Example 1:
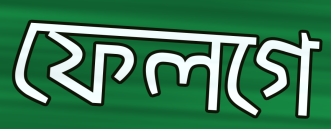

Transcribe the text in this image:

ফেলগে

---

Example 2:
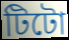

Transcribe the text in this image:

টিটো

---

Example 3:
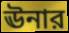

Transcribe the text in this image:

ঊনার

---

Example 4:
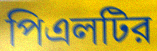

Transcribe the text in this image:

পিএলটির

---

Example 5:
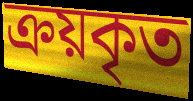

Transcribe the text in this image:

ক্রয়কৃত